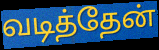
வடித்தேன்